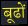
बूढों